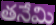
తనేమి